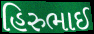
હિરુભાઈ